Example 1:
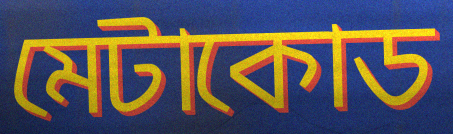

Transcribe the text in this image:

মেটাকোড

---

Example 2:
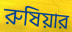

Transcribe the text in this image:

রুষিয়ার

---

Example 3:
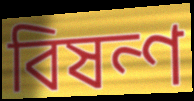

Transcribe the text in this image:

বিষন্ণ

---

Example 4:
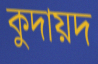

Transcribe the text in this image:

কুদায়দ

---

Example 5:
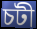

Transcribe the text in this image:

চটী